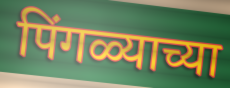
पिंगळ्याच्या